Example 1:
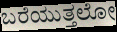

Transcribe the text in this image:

ಬರೆಯುತ್ತಲೋ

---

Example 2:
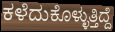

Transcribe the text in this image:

ಕಳೆದುಕೊಳ್ಳುತ್ತಿದ್ದೆ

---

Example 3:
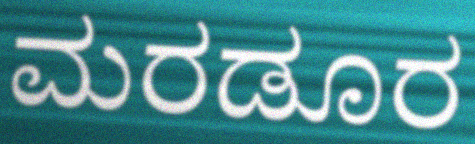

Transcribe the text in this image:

ಮರಡೂರ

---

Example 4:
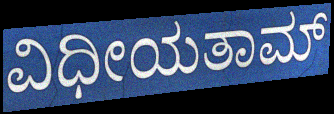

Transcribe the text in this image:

ವಿಧೀಯತಾಮ್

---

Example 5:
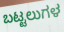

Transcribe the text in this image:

ಬಟ್ಟಲುಗಳ